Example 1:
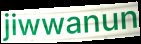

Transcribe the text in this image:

jiwwanun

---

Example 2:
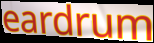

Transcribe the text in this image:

eardrum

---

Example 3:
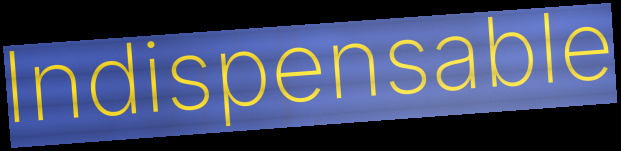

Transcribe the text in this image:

Indispensable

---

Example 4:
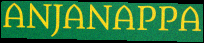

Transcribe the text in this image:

ANJANAPPA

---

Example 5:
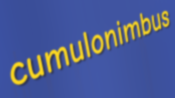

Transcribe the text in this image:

cumulonimbus